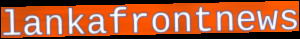
lankafrontnews